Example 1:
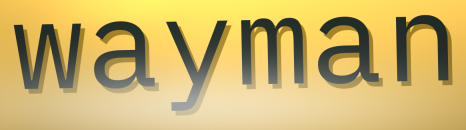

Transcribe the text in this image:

wayman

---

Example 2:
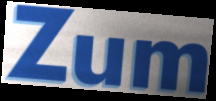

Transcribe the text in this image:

Zum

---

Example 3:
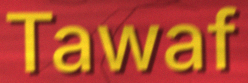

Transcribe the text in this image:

Tawaf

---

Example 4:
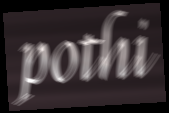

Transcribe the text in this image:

pothi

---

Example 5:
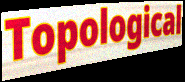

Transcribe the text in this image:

Topological